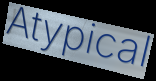
Atypical